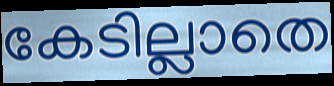
കേടില്ലാതെ